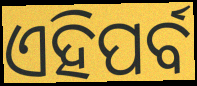
ଏହିପର୍ବ